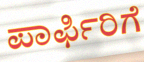
ಪಾರ್ಫಿರಿಗೆ